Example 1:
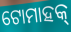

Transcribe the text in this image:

ଟୋମାହକ୍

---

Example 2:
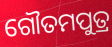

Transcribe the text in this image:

ଗୌତମପୁତ୍ର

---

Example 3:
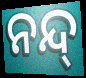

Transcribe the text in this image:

ନନ୍ଦ୍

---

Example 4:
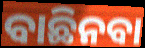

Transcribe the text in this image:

ବାଛିନବା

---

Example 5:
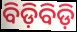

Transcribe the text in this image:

ବିଡ଼ିବିଡ଼ି